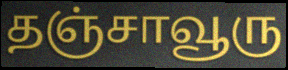
தஞ்சாவூரு